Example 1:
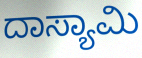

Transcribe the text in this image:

ದಾಸ್ಯಾಮಿ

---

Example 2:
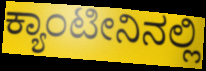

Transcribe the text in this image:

ಕ್ಯಾಂಟೀನಿನಲ್ಲಿ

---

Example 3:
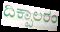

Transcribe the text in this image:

ದಿಕ್ಪಾಲರಂ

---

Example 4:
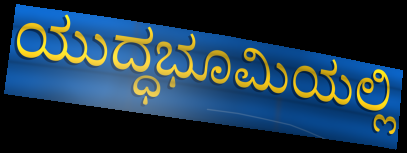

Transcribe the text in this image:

ಯುದ್ಧಭೂಮಿಯಲ್ಲಿ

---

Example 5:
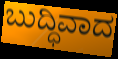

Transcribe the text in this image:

ಬುದ್ಧಿವಾದ